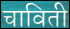
चाविती